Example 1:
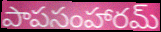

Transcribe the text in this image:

పాపసంహారమ్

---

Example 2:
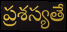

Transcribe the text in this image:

ప్రశస్యతే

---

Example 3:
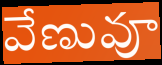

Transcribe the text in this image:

వేణువూ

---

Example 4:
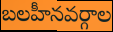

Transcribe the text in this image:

బలహీనవర్గాల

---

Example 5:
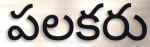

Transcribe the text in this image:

పలకరు